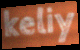
keliy